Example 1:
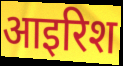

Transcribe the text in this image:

आइरिश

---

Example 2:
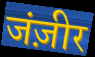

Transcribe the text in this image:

जंज़ीर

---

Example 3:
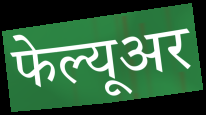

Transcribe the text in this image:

फेल्यूअर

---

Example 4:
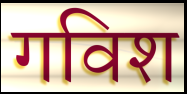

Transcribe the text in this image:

गविश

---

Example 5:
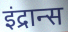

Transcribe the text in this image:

इंद्रान्स